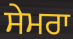
ਸੇਮਰਾ